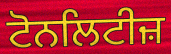
ਟੋਨਲਿਟੀਜ਼